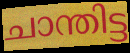
ചാന്തിട്ട